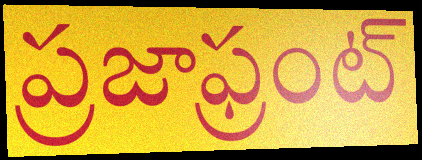
ప్రజాఫ్రంట్